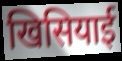
खिसियाई